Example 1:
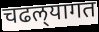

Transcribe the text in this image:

चढल्यागत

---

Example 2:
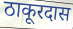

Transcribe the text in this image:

ठाकूरदास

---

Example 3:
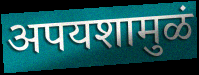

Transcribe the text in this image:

अपयशामुळं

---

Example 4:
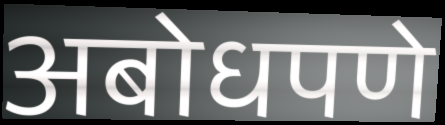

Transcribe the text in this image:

अबोधपणे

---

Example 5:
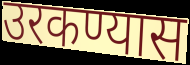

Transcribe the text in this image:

उरकण्यास